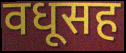
वधूसह